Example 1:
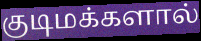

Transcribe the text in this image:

குடிமக்களால்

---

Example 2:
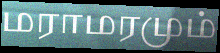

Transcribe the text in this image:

மராமரமும்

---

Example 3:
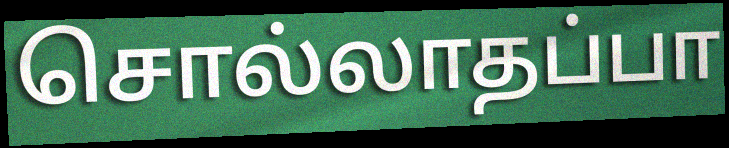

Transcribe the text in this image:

சொல்லாதப்பா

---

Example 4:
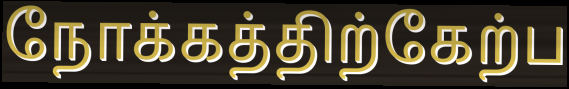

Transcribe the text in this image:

நோக்கத்திற்கேற்ப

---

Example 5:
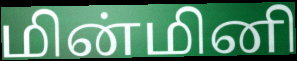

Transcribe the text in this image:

மின்மினி